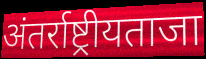
अंतर्राष्ट्रीयताजा